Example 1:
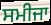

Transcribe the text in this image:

ਸਮੀਜਾ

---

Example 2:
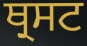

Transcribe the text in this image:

ਥ੍ਰਸਟ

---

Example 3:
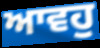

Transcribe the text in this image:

ਆਵਹੁ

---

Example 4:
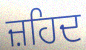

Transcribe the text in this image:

ਜ਼ਹਿਦ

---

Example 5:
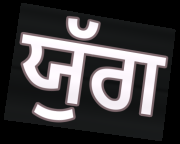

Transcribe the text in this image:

ਯੁੱਗ